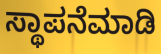
ಸ್ಥಾಪನೆಮಾಡಿ